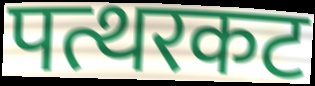
पत्थरकट